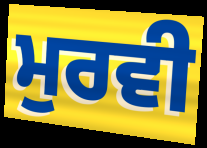
ਮੁਰਵੀ